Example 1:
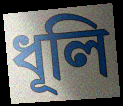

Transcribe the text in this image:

ধূলি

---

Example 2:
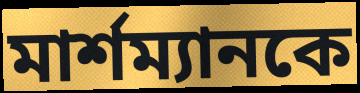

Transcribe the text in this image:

মার্শম্যানকে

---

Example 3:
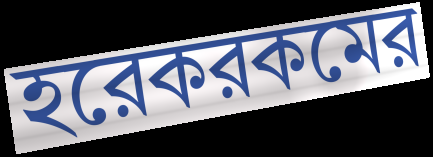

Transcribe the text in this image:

হরেকরকমের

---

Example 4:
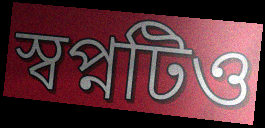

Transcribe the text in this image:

স্বপ্নটিও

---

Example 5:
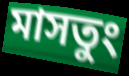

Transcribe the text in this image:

মাসতুং